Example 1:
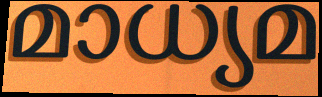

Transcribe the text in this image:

മാധ്യമ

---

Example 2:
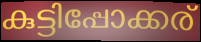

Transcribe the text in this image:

കുട്ടിപ്പോക്കര്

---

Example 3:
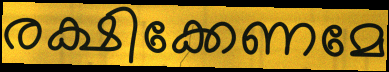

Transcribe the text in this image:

രക്ഷിക്കേണമേ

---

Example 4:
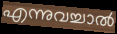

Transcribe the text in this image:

എന്നുവച്ചാൽ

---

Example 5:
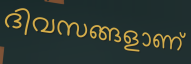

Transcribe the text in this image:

ദിവസങ്ങളാണ്